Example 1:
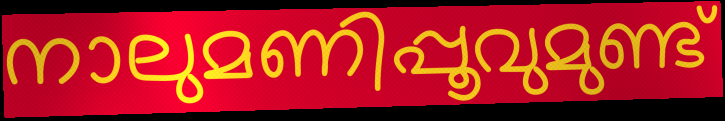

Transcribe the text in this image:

നാലുമണിപ്പൂവുമുണ്ട്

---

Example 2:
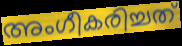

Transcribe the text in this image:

അംഗീകരിച്ചത്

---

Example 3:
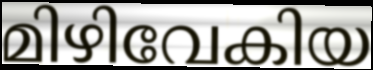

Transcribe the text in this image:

മിഴിവേകിയ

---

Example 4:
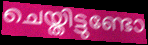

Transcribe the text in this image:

ചെയ്തിട്ടുണ്ടോ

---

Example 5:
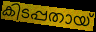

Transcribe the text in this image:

കിടപ്പതായ്